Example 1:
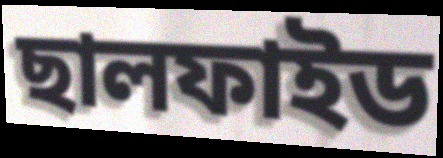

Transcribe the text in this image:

ছালফাইড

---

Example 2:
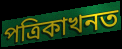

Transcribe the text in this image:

পত্ৰিকাখনত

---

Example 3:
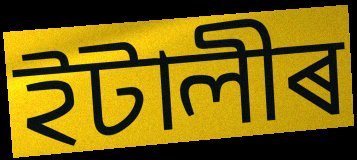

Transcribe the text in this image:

ইটালীৰ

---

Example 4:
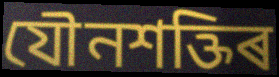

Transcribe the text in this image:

যৌনশক্তিৰ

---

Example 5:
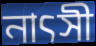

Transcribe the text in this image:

নাৎসী